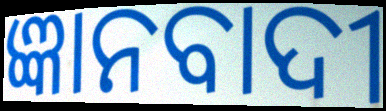
ଜ୍ଞାନବାଦୀ